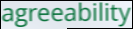
agreeability